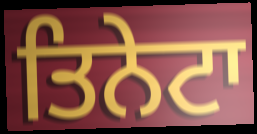
ਤਿਨੇਟਾ